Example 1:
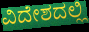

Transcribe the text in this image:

ವಿದೇಶದಲ್ಲಿ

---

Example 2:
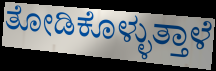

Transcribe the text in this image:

ತೋಡಿಕೊಳ್ಳುತ್ತಾಳೆ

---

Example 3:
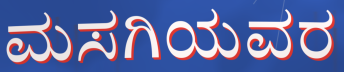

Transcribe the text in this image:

ಮಸಗಿಯವರ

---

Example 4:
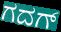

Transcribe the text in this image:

ಗದಗ್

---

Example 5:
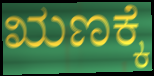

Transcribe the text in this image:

ಋಣಕ್ಕೆ